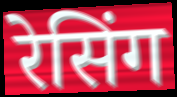
रेसिंग